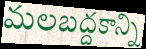
మలబద్దకాన్ని